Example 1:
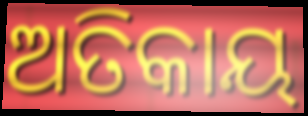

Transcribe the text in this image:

ଅତିକାୟ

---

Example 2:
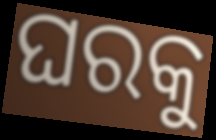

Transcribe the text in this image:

ଘରକୁ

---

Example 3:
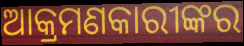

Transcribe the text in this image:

ଆକ୍ରମଣକାରୀଙ୍କର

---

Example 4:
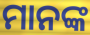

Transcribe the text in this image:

ମାନଙ୍କ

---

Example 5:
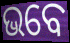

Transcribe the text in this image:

ଭବେ